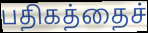
பதிகத்தைச்